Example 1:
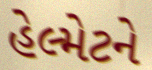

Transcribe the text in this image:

હેલ્મેટને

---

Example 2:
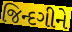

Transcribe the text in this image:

જિન્દગીને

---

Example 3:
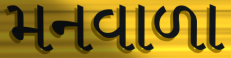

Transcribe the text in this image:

મનવાળા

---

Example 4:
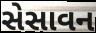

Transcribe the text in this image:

સેસાવન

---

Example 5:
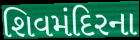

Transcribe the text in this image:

શિવમંદિરના